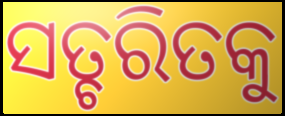
ସତ୍ଚରିତକୁ